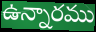
ఉన్నారము